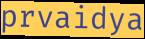
prvaidya